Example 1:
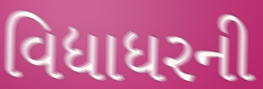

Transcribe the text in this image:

વિદ્યાધરની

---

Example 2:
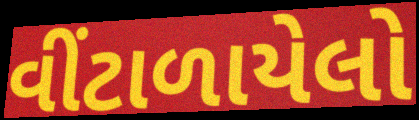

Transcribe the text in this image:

વીંટાળાયેલો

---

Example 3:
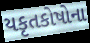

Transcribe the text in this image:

યકૃતકોષોના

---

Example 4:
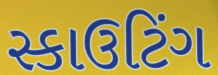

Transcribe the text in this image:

સ્કાઉટિંગ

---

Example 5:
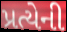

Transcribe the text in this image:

પ્રત્યેની